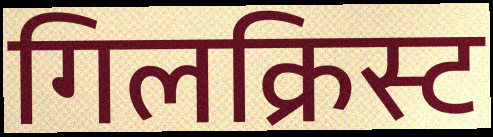
गिलक्रिस्ट